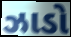
ઝાડો